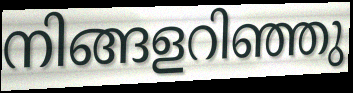
നിങ്ങളറിഞ്ഞു